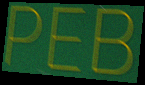
PEB